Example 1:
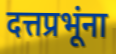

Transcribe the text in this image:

दत्तप्रभूंना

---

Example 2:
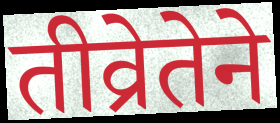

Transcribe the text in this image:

तीव्रेतेने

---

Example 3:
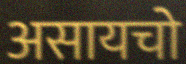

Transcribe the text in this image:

असायचो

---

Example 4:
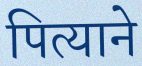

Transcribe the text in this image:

पित्याने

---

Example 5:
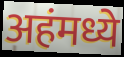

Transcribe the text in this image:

अहंमध्ये